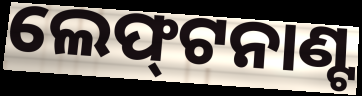
ଲେଫ୍‌ଟନାଣ୍ଟ